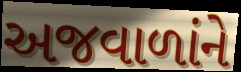
અજવાળાંને